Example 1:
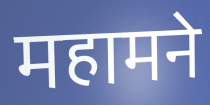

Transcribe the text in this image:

महामने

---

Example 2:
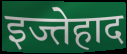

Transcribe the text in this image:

इज्तेहाद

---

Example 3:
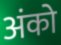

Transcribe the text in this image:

अंको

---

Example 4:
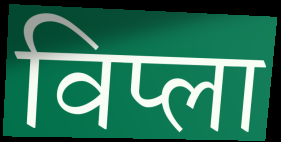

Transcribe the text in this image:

विप्ला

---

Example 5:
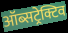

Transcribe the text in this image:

ऑब्सट्रेक्टिव